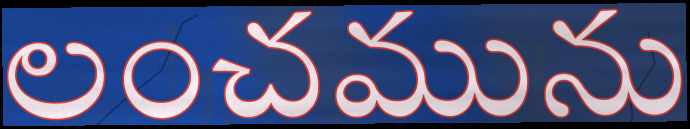
లంచమును